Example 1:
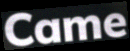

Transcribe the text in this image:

Came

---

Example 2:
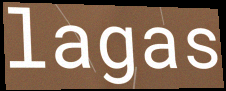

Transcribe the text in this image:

lagas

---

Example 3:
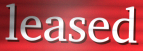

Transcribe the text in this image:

leased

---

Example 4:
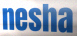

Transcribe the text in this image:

nesha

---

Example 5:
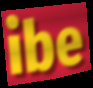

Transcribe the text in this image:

ibe